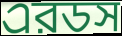
এরডস